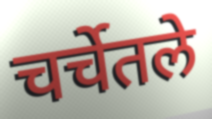
चर्चेतले